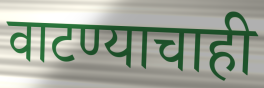
वाटण्याचाही